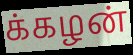
க்கழன்